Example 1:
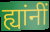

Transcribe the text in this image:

ह्यांनीं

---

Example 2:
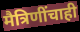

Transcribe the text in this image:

मैत्रिणींचाही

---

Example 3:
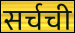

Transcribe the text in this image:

सर्चची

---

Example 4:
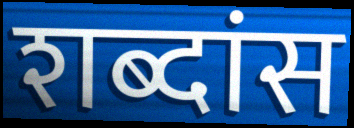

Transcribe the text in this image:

शब्दांस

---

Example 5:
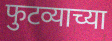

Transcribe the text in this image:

फुटव्याच्या